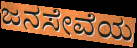
ಜನಸೇವೆಯ